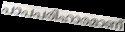
പാപപരിഹാരമാണ്